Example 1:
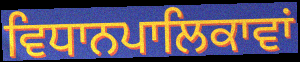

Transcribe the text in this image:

ਵਿਧਾਨਪਾਲਿਕਾਵਾਂ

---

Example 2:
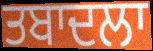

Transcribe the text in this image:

ਤਬਾਦਲਾ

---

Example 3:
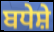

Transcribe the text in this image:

ਬਧੇਸ਼ੇ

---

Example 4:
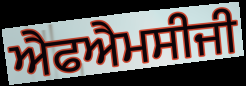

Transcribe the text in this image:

ਐਫਐਮਸੀਜੀ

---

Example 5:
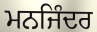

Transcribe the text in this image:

ਮਨਜਿੰਦਰ